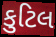
કુટિલ